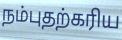
நம்புதற்கரிய